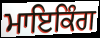
ਮਾਇਕਿੰਗ